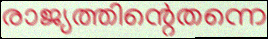
രാജ്യത്തിന്റെതന്നെ